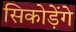
सिकोड़ेंगे